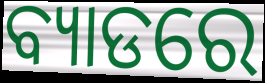
ବ୍ୟାଡରେ